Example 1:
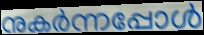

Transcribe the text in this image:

നുകർന്നപ്പോൾ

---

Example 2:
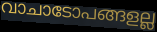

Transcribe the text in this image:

വാചാടോപങ്ങളല്ല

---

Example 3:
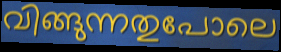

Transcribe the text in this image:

വിങ്ങുന്നതുപോലെ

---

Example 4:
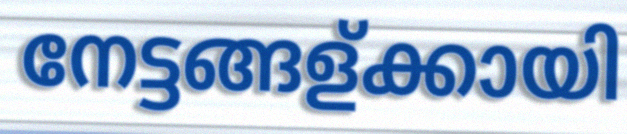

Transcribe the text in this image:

നേട്ടങ്ങള്ക്കായി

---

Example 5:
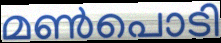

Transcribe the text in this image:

മൺപൊടി